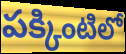
పక్కింటిలో